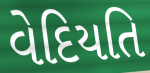
વેદિયતિ